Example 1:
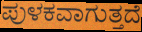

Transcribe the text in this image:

ಪುಳಕವಾಗುತ್ತದೆ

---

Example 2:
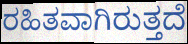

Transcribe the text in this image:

ರಹಿತವಾಗಿರುತ್ತದೆ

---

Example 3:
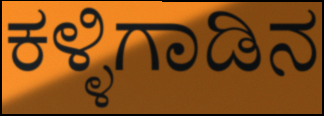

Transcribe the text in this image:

ಕಳ್ಳಿಗಾಡಿನ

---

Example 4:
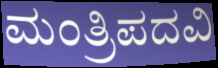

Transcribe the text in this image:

ಮಂತ್ರಿಪದವಿ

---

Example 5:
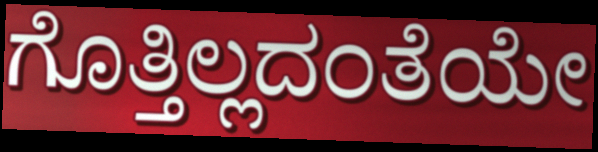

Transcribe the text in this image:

ಗೊತ್ತಿಲ್ಲದಂತೆಯೇ